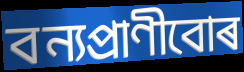
বন্যপ্ৰাণীবোৰ